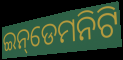
ଇନ୍‌ଡେମନିଟି